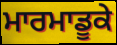
ਮਾਰਮਾਡੂਕੇ